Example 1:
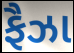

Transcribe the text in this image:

ફૈઝા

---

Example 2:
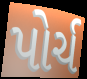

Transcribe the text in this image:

પોર્ચ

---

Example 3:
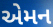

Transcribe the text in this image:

એમન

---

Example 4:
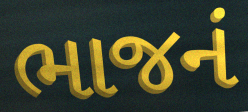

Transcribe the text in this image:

ભાજનં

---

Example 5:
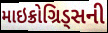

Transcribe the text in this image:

માઇક્રોગ્રિડ્સની